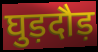
घुड़दौड़